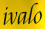
ivalo